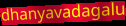
dhanyavadagalu